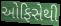
ઓફિસેથી